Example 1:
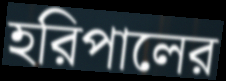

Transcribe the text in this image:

হরিপালের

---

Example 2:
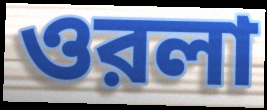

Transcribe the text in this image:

ওরলা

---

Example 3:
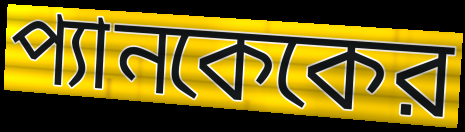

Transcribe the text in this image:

প্যানকেকের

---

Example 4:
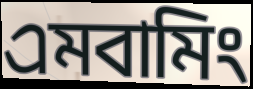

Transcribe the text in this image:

এমবামিং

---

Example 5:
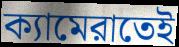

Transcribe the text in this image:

ক্যামেরাতেই